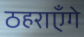
ठहराएँगे